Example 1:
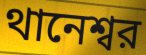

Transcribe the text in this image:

থানেশ্বর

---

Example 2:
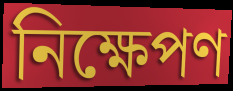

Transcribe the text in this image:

নিক্ষেপণ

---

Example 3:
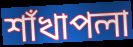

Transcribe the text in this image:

শাঁখাপলা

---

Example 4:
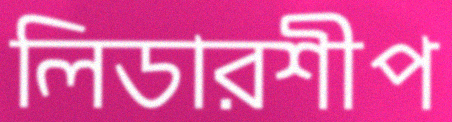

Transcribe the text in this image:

লিডারশীপ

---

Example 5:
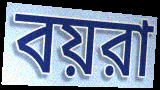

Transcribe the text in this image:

বয়রা